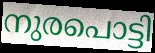
നുരപൊട്ടി